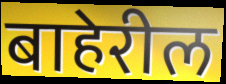
बाहेरील